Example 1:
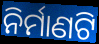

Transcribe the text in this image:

ନିର୍ମାଣଟି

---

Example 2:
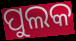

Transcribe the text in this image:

ପୁଲକ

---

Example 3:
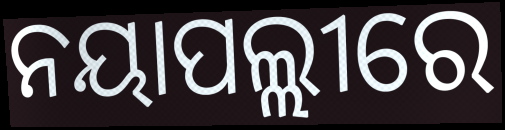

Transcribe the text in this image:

ନୟାପଲ୍ଲୀରେ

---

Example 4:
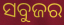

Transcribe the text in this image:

ସବୁଜର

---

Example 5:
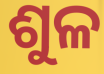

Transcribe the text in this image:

ଶୁଳ